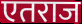
एतराज